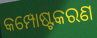
କମ୍ପୋଷ୍ଟକରଣ